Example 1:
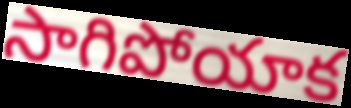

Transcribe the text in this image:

సాగిపోయాక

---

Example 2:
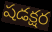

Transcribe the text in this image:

షడక్షర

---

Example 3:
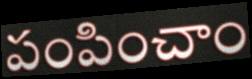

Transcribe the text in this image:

పంపించాం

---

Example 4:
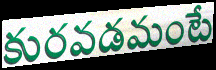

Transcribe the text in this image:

కురవడమంటే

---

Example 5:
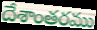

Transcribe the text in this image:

దేశాంతరము